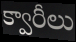
క్వారీలు